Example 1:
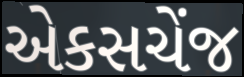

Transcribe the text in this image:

એકસચેંજ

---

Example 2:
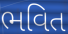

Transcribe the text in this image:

ભવિત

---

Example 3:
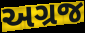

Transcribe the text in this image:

અગ્રજ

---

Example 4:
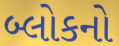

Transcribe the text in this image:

બ્લોકનો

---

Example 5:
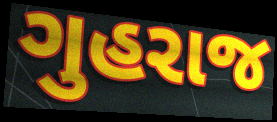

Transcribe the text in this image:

ગુહરાજ